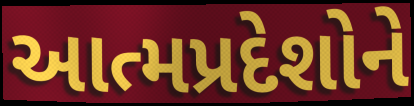
આત્મપ્રદેશોને